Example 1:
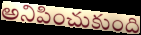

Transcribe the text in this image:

అనిపించుకుంది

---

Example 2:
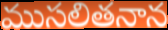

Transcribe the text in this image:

ముసలితనాన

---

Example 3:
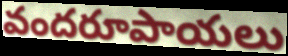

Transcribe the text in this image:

వందరూపాయలు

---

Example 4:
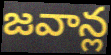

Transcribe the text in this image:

జవాన్ల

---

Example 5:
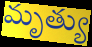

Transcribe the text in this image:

మృత్యు